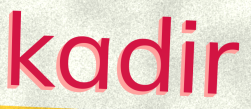
kadir